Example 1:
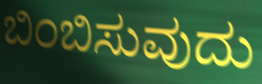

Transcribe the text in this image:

ಬಿಂಬಿಸುವುದು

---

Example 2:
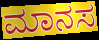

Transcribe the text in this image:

ಮಾನಸ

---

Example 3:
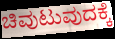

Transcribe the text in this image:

ಚಿವುಟುವುದಕ್ಕೆ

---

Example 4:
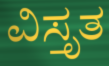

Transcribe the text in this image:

ವಿಸ್ತೃತ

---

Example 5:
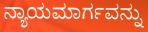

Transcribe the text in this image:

ನ್ಯಾಯಮಾರ್ಗವನ್ನು